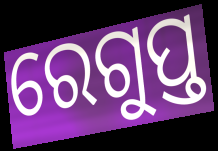
ରେଗୁପ୍ତ